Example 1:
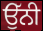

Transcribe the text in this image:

ਉੱਨੀ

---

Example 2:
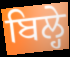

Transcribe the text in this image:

ਬਿਲ੍ਹੇ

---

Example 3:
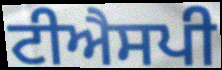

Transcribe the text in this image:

ਟੀਐਸਪੀ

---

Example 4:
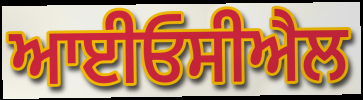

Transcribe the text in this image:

ਆਈਓਸੀਐਲ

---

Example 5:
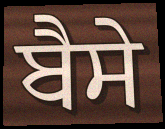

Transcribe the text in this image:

ਬੈਸੇ